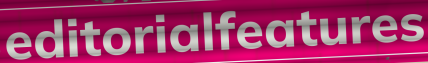
editorialfeatures